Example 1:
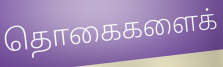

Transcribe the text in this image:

தொகைகளைக்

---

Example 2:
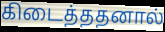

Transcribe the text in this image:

கிடைத்ததனால்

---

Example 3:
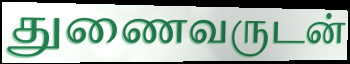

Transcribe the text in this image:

துணைவருடன்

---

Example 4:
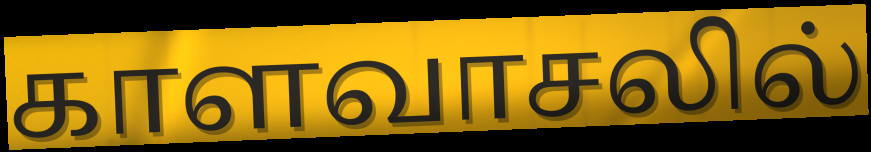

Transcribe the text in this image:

காளவாசலில்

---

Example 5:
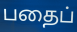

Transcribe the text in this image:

பதைப்